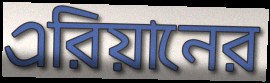
এরিয়ানের